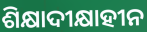
ଶିକ୍ଷାଦୀକ୍ଷାହୀନ